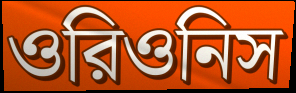
ওরিওনিস